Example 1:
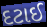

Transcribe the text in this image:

દટાઈ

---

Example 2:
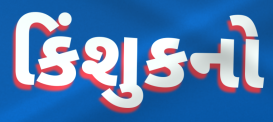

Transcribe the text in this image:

કિંશુકનો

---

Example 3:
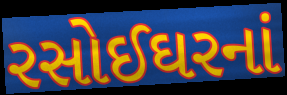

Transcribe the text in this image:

રસોઈઘરનાં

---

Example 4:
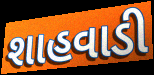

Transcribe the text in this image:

શાહવાડી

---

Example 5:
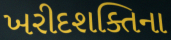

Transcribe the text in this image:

ખરીદશક્તિના